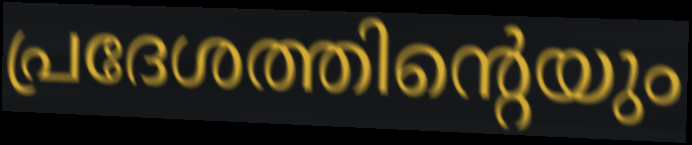
പ്രദേശത്തിന്റെയും